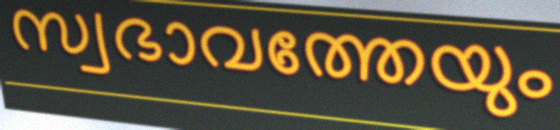
സ്വഭാവത്തേയും